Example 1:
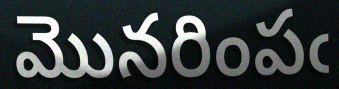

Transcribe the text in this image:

మొనరింపఁ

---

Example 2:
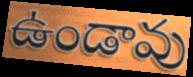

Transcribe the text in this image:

ఉండావు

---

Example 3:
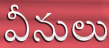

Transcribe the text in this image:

వీనులు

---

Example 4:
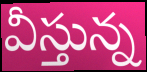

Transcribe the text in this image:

వీస్తున్న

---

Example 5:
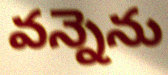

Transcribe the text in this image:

వన్నెను